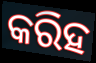
କରିହ